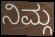
ನಿಮ್ಗ